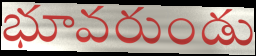
భూవరుండు